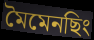
মৈমেনছিং